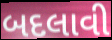
બદલાવી